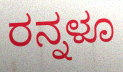
ರನ್ನಳೂ